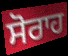
ਸੋਰਾਹ